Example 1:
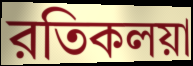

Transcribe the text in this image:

রতিকলয়া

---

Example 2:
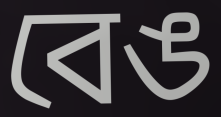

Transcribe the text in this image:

বেঙ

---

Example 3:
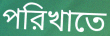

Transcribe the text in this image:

পরিখাতে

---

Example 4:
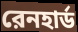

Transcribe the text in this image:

রেনহার্ড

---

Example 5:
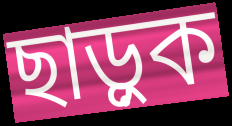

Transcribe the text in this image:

ছাড়ুক